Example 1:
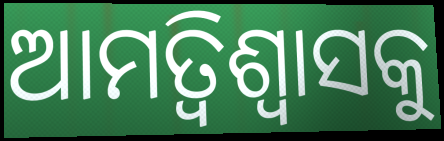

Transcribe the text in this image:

ଆମତ୍ବିଶ୍ୱାସକୁ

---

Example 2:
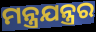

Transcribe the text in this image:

ମନ୍ତ୍ରଯନ୍ତ୍ରର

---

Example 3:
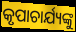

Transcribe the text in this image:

କୃପାଚାର୍ଯ୍ୟଙ୍କୁ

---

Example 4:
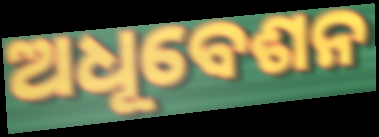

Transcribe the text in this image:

ଅଧୂବେଶନ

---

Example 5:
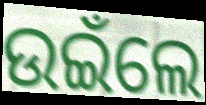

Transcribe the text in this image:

ଉଇଁଲେ